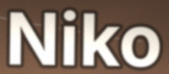
Niko